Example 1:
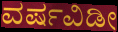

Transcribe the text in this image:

ವರ್ಷವಿಡೀ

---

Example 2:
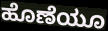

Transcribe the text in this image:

ಹೊಣೆಯೂ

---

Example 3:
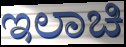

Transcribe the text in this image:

ಇಲಾಚಿ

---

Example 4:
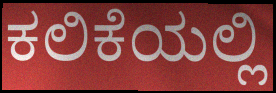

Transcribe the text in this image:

ಕಲಿಕೆಯಲ್ಲಿ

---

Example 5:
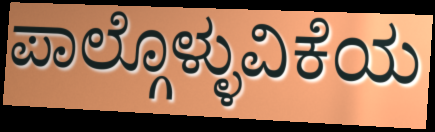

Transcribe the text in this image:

ಪಾಲ್ಗೊಳ್ಳುವಿಕೆಯ